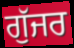
ਗੁੱਜਰ